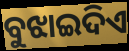
ବୁଝାଇଦିଏ